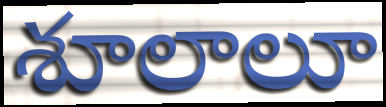
శూలాలూ